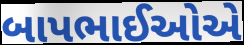
બાપભાઈઓએ